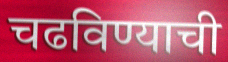
चढविण्याची